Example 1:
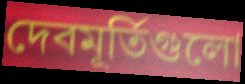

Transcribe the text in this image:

দেবমূর্তিগুলো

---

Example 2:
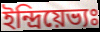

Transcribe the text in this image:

ইন্দ্রিয়েভ্যঃ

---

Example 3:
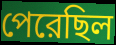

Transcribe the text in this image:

পেরেছিল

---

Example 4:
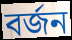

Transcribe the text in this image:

বর্জন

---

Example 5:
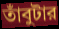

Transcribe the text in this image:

তাঁবুটার